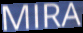
MIRA